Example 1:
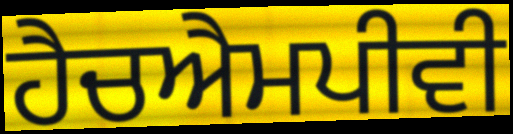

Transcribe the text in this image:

ਹੈਚਐਮਪੀਵੀ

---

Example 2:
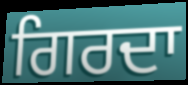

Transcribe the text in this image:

ਗਿਰਦਾ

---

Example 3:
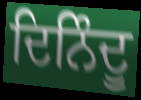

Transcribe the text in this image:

ਦਿਨਿੰਦੂ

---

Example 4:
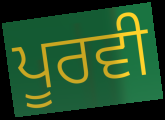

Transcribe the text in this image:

ਪੂਰਵੀ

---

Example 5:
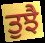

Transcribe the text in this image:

ਤੁਝੈ